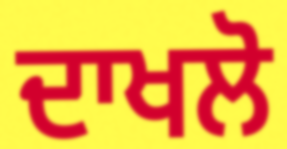
ਦਾਖਲੋ